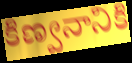
కిణ్వనానికి